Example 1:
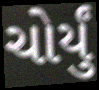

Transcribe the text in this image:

ચોર્યું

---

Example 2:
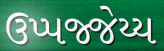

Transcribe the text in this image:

ઉપ્પજ્જેય્ય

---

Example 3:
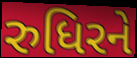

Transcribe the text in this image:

રુધિરને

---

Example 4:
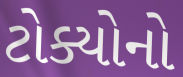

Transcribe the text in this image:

ટોક્યોનો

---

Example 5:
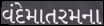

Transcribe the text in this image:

વંદેમાતરમના